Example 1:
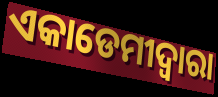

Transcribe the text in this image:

ଏକାଡେମୀଦ୍ୱାରା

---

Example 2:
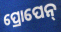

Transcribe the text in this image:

ପ୍ରୋପେନ୍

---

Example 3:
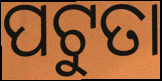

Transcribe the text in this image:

ପଟୁତା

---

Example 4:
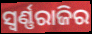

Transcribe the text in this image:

ସ୍ଵର୍ଣ୍ଣରାଜିର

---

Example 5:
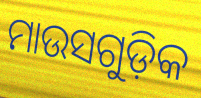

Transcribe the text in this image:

ମାଉସଗୁଡ଼ିକ